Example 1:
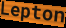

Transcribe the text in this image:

Lepton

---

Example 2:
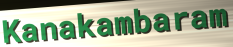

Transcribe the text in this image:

Kanakambaram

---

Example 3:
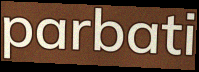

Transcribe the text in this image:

parbati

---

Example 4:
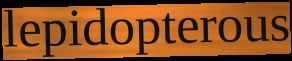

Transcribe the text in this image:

lepidopterous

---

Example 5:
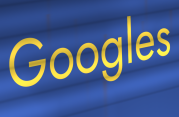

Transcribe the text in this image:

Googles